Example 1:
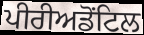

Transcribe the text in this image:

ਪੀਰੀਅਡੋਂਟਿਲ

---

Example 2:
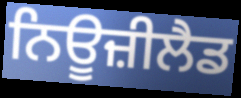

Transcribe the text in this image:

ਨਿਊਜ਼ੀਲੈਡ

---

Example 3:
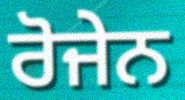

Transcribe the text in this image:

ਰੋਜੇਨ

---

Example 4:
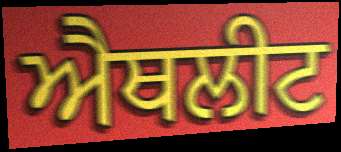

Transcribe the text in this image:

ਐਥਲੀਟ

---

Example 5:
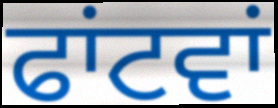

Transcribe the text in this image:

ਫਾਂਟਵਾਂ